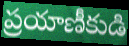
ప్రయాణీకుడి